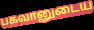
பகவானுடைய